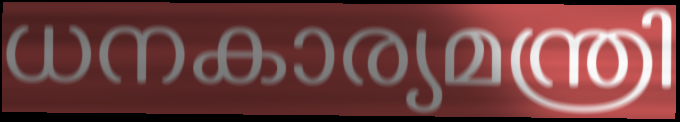
ധനകാര്യമന്ത്രി